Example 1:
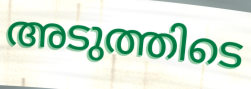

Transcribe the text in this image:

അടുത്തിടെ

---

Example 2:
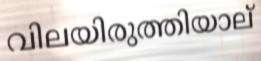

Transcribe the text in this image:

വിലയിരുത്തിയാല്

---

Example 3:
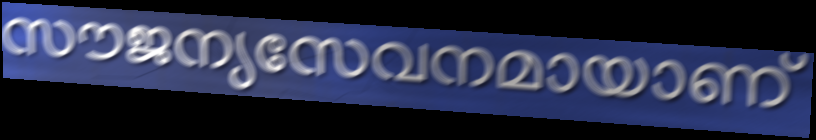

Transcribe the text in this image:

സൗജന്യസേവനമായാണ്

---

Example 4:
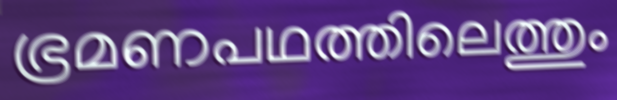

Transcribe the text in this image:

ഭ്രമണപഥത്തിലെത്തും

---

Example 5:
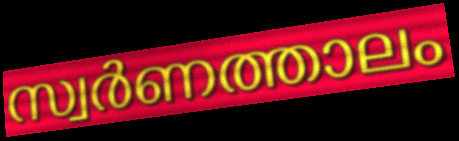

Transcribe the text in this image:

സ്വർണത്താലം